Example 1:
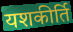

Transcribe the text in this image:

यशकीर्ति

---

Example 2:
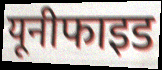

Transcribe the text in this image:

यूनीफाइड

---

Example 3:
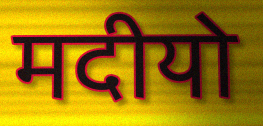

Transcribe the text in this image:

मदीयो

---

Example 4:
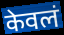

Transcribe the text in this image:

केवलं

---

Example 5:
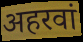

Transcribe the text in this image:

अहरवां